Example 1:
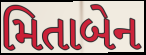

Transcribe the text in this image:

મિતાબેન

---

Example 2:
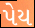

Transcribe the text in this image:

પેય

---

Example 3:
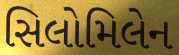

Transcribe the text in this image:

સિલોમિલેન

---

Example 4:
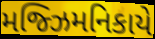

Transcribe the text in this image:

મજ્ઝિમનિકાયે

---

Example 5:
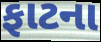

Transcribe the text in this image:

ફાટના